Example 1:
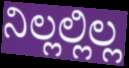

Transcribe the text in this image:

ನಿಲ್ಲಲ್ಲಿಲ್ಲ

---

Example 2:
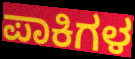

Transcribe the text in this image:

ಪಾಕಿಗಳ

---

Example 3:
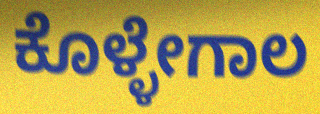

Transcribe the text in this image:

ಕೊಳ್ಳೇಗಾಲ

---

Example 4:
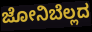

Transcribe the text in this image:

ಜೋನಿಬೆಲ್ಲದ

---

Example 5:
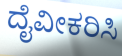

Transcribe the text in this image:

ದೈವೀಕರಿಸಿ